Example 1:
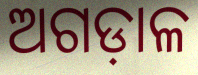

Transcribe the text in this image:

ଅଗଡ଼ାଳ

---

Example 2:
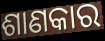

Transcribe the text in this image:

ଶାଣକାର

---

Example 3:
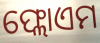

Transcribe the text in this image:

ଫ୍ଲୋଏମ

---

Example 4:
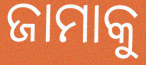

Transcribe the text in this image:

ଜାମାକୁ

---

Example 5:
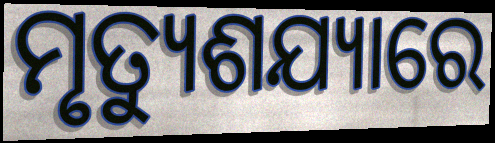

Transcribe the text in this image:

ମୃତ୍ୟୁଶଯ୍ୟାରେ